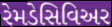
રેમડેસિવિઅર